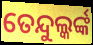
ତେନ୍ଦୁଲ୍କର୍ଙ୍କ